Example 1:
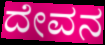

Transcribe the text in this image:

ದೇವನ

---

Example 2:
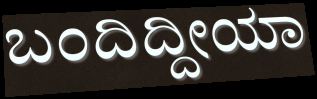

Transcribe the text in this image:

ಬಂದಿದ್ದೀಯಾ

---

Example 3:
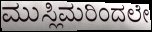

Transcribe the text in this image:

ಮುಸ್ಲಿಮರಿಂದಲೇ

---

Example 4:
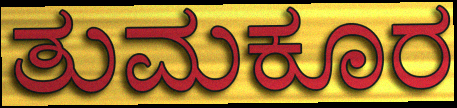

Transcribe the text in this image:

ತುಮಕೂರ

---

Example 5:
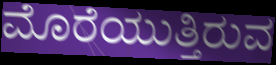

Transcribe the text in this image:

ಮೊರೆಯುತ್ತಿರುವ